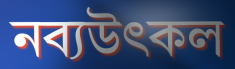
নব্যউৎকল